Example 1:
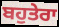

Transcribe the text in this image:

ਬਹੁਤੇਰਾ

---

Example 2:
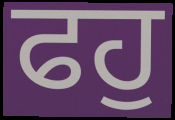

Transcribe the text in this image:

ਫਹੁ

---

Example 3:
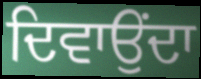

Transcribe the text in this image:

ਦਿਵਾਉਂਦਾ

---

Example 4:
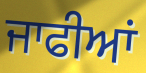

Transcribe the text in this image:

ਜਾਫੀਆਂ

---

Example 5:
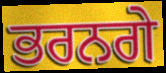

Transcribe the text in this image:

ਭਰਨਗੇ